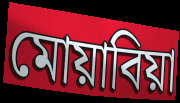
মোয়াবিয়া